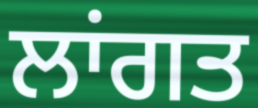
ਲਾਂਗਤ